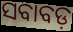
ସବାବଡ଼